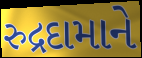
રુદ્રદામાને